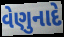
વેણુનાદે